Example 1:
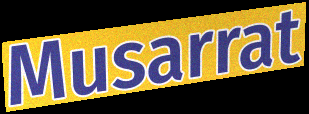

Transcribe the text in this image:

Musarrat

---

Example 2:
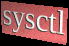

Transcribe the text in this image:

sysctl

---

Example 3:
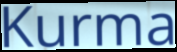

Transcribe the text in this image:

Kurma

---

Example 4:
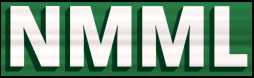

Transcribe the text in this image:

NMML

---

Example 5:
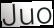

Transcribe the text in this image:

Juo